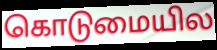
கொடுமையில